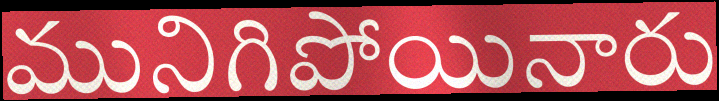
మునిగిపోయినారు